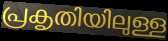
പ്രകൃതിയിലുള്ള